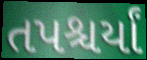
તપશ્ચર્યાં